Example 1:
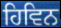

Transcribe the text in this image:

ਹਿਵਿਨ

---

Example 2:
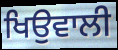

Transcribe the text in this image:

ਖਿਉਵਾਲੀ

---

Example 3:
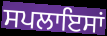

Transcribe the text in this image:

ਸਪਲਾਇਸਾਂ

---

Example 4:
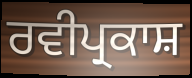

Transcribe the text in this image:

ਰਵੀਪ੍ਰਕਾਸ਼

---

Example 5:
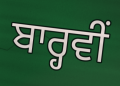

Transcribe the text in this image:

ਬਾਰ੍ਹਵੀਂ